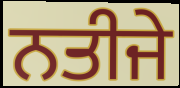
ਨਤੀਜੇ